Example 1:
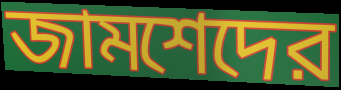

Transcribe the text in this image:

জামশেদের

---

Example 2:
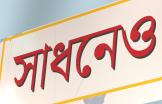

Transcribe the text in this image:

সাধনেও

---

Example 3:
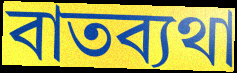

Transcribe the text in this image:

বাতব্যথা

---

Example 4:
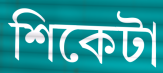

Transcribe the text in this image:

শিকেটা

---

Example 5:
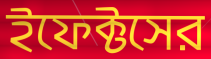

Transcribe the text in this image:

ইফেক্টসের